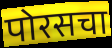
पोरसचा